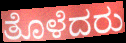
ತೊಳೆದರು